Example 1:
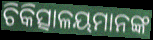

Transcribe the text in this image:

ଚିକିତ୍ସାଳୟମାନଙ୍କ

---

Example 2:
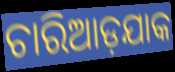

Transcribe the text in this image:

ଚାରିଆଡ଼ଯାକ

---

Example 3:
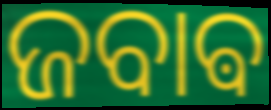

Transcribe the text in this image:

ଜବାଵ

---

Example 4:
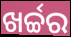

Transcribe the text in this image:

ଖର୍ଚ୍ଚର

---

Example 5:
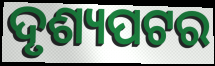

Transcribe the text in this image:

ଦୃଶ୍ୟପଟର